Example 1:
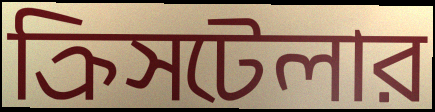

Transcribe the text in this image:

ক্রিসটেলার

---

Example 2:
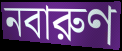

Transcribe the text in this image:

নবারুণ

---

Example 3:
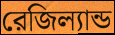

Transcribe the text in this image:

রেজিল্যান্ড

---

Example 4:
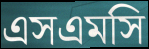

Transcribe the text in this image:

এসএমসি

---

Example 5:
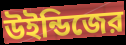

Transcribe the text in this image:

উইন্ডিজের